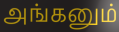
அங்கனும்